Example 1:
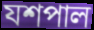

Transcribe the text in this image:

যশপাল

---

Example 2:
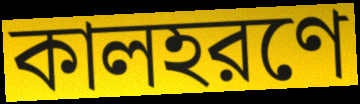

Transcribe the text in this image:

কালহরণে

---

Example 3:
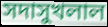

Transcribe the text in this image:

সদাসুখলাল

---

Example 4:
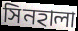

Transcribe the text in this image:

সিনহালা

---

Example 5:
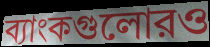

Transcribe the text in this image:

ব্যাংকগুলোরও